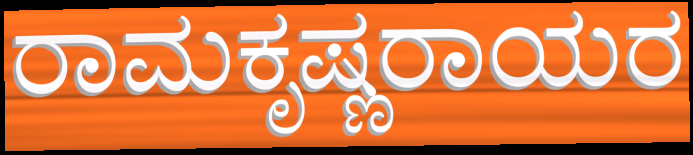
ರಾಮಕೃಷ್ಣರಾಯರ